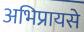
अभिप्रायसे